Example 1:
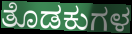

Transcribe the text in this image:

ತೊಡಕುಗಳ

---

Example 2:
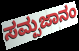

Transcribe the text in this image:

ಸಮ್ಪಜಾನಂ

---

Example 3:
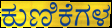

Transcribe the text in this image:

ಕುಣಿಕೆಗಳ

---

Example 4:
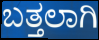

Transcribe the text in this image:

ಬತ್ತಲಾಗಿ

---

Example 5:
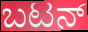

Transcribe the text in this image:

ಬಟನ್